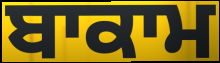
ਬਾਕਾਮ